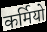
कर्मियो